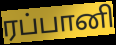
ரப்பானி